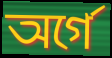
অর্গে